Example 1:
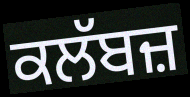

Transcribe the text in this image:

ਕਲੱਬਜ਼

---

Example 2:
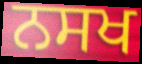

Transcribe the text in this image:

ਨਸਖ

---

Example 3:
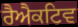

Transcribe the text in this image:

ਰੈਐਕਟਿਵ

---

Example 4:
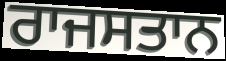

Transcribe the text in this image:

ਰਾਜਸਤਾਨ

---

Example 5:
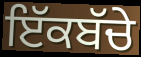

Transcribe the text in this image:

ਇੱਕਬੱਚੇ